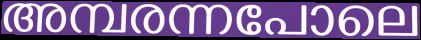
അമ്പരന്നപോലെ